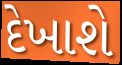
દેખાશે